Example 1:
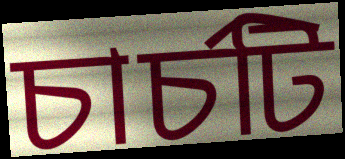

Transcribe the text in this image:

চার্চটি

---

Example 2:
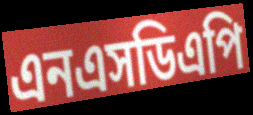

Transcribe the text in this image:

এনএসডিএপি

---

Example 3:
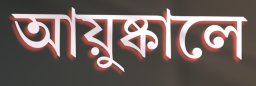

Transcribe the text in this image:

আয়ুষ্কালে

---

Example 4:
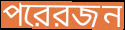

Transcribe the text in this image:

পরেরজন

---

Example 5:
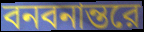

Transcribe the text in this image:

বনবনান্তরে